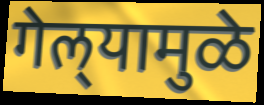
गेल्यामुळे